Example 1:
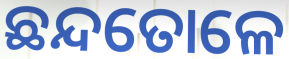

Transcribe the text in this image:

ଛନ୍ଦତୋଳେ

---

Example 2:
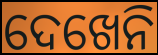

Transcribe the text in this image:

ଦେଖେନି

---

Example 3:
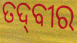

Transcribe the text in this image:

ତଦ୍‌ବୀର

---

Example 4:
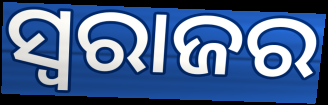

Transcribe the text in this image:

ସ୍ବରାଜର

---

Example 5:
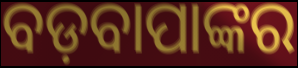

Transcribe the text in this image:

ବଡ଼ବାପାଙ୍କର